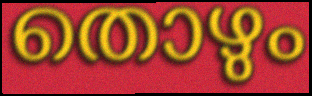
തൊഴും